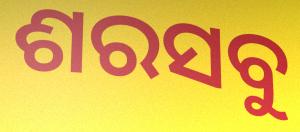
ଶରସବୁ